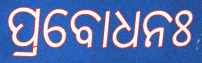
ପ୍ରବୋଧନଃ